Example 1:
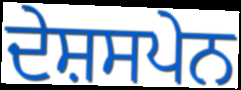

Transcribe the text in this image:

ਦੇਸ਼ਸਪੇਨ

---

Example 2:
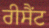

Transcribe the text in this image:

ਰੀਸੈਂਟ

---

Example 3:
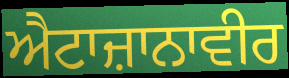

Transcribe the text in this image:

ਐਟਾਜ਼ਾਨਾਵੀਰ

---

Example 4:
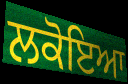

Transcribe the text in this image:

ਲਕੋਇਆ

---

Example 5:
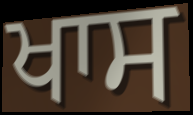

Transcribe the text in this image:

ਖਾਸ